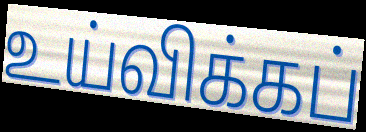
உய்விக்கப்